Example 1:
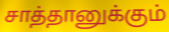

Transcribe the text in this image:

சாத்தானுக்கும்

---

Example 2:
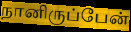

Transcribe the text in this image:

நானிருப்பேன்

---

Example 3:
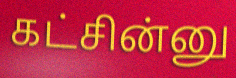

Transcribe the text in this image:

கட்சின்னு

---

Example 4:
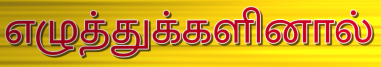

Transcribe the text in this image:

எழுத்துக்களினால்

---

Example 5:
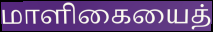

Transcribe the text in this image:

மாளிகையைத்